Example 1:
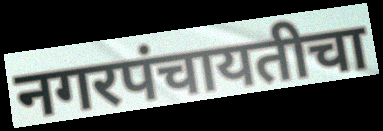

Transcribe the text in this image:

नगरपंचायतीचा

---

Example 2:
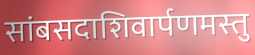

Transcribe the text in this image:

सांबसदाशिवार्पणमस्तु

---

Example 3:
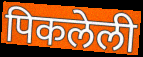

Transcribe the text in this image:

पिकलेली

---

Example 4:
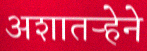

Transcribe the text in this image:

अशातऱ्हेने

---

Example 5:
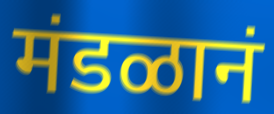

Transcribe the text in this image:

मंडळानं